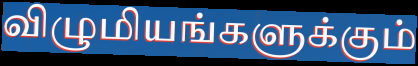
விழுமியங்களுக்கும்